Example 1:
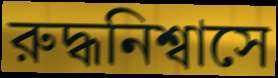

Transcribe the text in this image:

রুদ্ধনিশ্বাসে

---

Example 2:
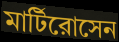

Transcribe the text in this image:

মার্টিরোসেন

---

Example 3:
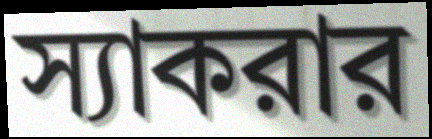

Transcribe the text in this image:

স্যাকরার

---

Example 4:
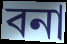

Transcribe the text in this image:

বনা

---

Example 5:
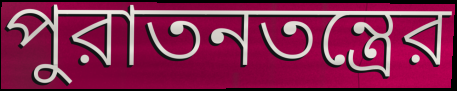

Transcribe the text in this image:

পুরাতনতন্ত্রের